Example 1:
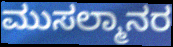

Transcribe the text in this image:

ಮುಸಲ್ಮಾನರ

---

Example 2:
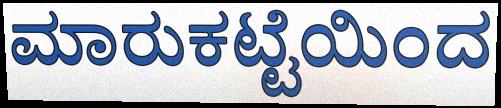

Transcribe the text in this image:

ಮಾರುಕಟ್ಟೆಯಿಂದ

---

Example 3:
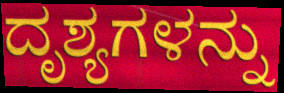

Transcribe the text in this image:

ದೃಶ್ಯಗಳನ್ನು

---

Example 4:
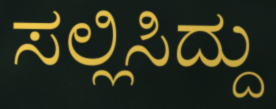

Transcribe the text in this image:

ಸಲ್ಲಿಸಿದ್ದು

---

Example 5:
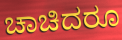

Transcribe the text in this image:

ಚಾಚಿದರೂ